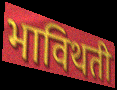
भाविथती